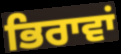
ਭਿਰਾਵਾਂ